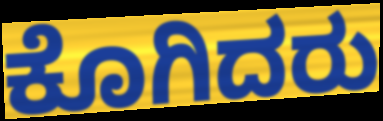
ಕೊಗಿದರು